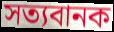
সত্যবানক